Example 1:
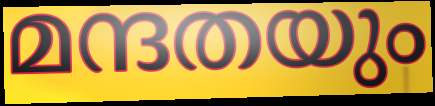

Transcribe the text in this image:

മന്ദതയും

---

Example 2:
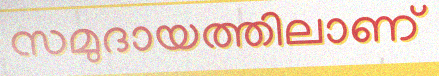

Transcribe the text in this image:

സമുദായത്തിലാണ്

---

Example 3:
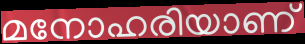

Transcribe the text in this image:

മനോഹരിയാണ്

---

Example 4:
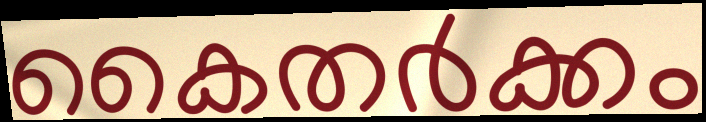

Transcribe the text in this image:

കൈതർക്കം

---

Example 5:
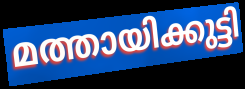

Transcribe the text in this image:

മത്തായിക്കുട്ടി